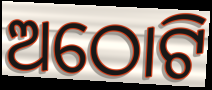
ଅଠୋଟି